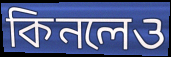
কিনলেও